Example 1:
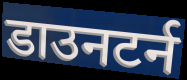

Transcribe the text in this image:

डाउनटर्न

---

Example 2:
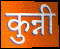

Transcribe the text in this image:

कुन्नी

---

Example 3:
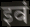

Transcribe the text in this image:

इवं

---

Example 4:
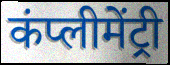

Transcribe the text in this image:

कंप्लीमेंट्री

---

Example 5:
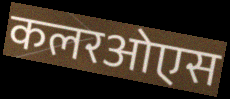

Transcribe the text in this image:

कलरओएस